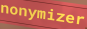
nonymizer